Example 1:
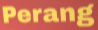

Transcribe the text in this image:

Perang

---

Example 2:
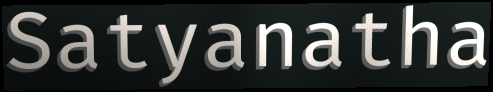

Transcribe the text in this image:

Satyanatha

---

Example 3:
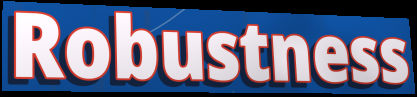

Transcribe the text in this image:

Robustness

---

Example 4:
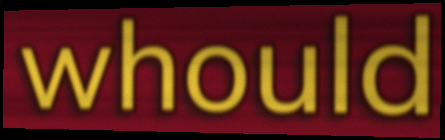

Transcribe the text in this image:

whould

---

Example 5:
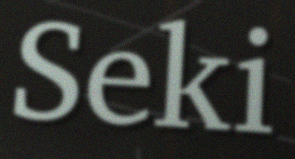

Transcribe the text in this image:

Seki